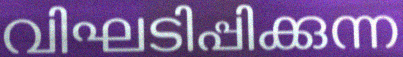
വിഘടിപ്പിക്കുന്ന